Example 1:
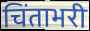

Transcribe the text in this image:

चिंताभरी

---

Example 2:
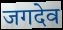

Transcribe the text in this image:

जगदेव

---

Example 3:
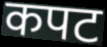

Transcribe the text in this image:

कपट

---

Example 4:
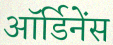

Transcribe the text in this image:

ऑर्डिनेंस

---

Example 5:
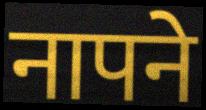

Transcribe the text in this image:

नापने